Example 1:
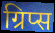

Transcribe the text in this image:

ग्रिप्स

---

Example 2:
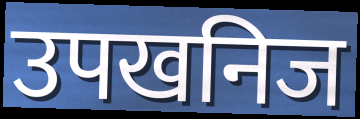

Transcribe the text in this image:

उपखनिज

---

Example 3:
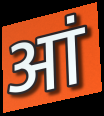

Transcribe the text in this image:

आं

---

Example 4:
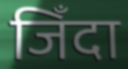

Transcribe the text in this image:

जिँदा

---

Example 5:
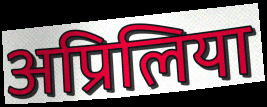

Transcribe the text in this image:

अप्रिलिया